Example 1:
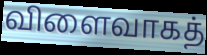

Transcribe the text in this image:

விளைவாகத்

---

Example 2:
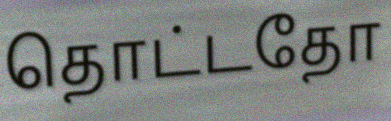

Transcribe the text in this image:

தொட்டதோ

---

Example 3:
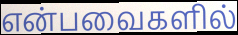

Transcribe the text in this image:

என்பவைகளில்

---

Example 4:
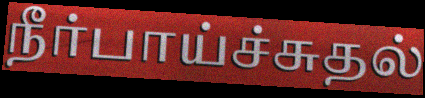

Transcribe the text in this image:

நீர்பாய்ச்சுதல்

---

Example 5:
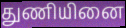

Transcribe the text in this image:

துணியினை